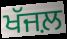
ਖੱਜਲ਼